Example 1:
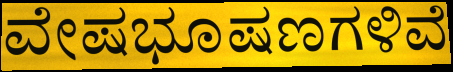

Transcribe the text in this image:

ವೇಷಭೂಷಣಗಳಿವೆ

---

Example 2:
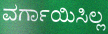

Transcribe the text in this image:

ವರ್ಗಾಯಿಸಿಲ್ಲ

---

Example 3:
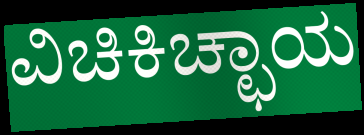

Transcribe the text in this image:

ವಿಚಿಕಿಚ್ಛಾಯ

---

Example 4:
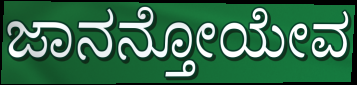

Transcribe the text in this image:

ಜಾನನ್ತೋಯೇವ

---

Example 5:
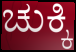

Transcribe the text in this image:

ಚುಕ್ಕಿ